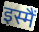
इस्मैं